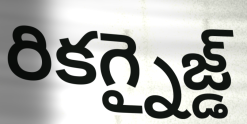
రికగ్నైజ్డ్